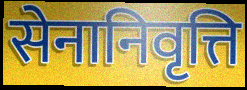
सेनानिवृत्ति